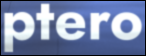
ptero